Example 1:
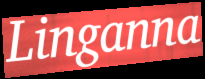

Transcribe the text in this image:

Linganna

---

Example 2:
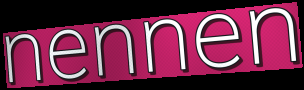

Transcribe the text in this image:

nennen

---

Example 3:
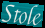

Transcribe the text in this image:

Stole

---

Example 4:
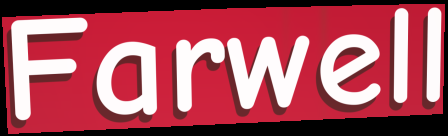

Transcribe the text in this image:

Farwell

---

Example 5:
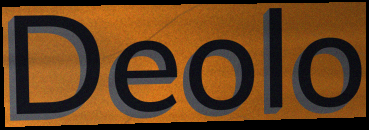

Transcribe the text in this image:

Deolo